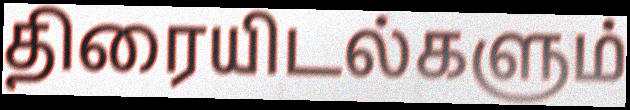
திரையிடல்களும்